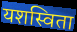
यशस्विता